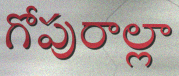
గోపురాల్లా